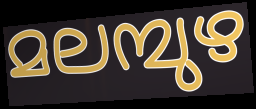
മലമ്പുഴ